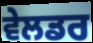
ਵੇਲਡਰ